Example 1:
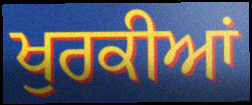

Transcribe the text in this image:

ਖੁਰਕੀਆਂ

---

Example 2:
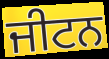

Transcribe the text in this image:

ਜੀਟਨ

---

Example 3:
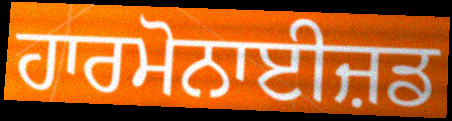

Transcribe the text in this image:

ਹਾਰਮੋਨਾਈਜ਼ਡ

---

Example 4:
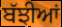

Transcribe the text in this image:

ਬੱਝੀਆਂ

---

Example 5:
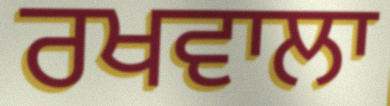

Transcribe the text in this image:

ਰਖਵਾਲਾ